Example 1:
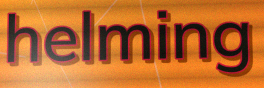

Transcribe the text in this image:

helming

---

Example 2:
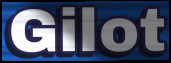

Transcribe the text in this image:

Gilot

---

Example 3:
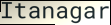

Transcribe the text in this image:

Itanagar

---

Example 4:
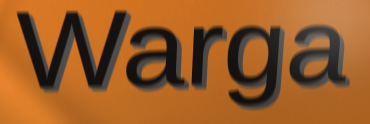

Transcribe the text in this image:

Warga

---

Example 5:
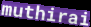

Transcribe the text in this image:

muthirai